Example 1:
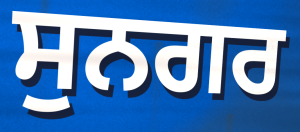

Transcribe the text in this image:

ਸੁਨਗਰ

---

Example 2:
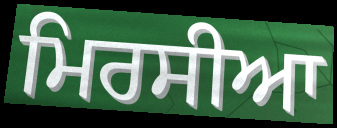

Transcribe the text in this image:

ਮਿਰਸੀਆ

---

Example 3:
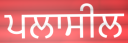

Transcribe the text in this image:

ਪਲਾਸੀਲ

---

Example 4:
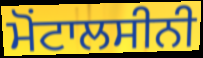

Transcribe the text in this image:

ਮੋਂਟਾਲਸੀਨੀ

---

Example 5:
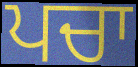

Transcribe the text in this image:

ਪਚਾ